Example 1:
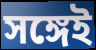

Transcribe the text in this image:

সঙ্গেই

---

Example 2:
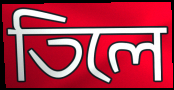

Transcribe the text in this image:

তিলে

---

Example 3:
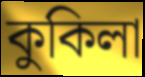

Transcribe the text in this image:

কুকিলা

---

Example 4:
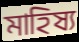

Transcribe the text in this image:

মাহিষ্য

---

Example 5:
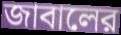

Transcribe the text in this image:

জাবালের